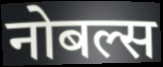
नोबल्स